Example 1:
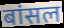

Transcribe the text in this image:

बांसल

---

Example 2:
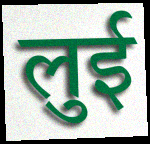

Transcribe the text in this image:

लुई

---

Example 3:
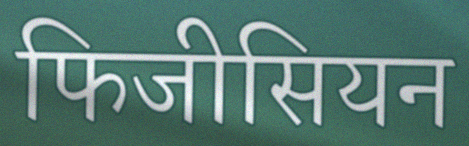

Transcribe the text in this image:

फिजीसियन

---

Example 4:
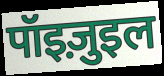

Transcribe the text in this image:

पॉइज़ुइल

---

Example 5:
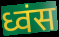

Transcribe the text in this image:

ध्वंस